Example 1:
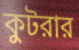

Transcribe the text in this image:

কুটরার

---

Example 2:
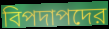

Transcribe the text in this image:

বিপদাপদের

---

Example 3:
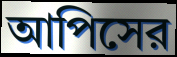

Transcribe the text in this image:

আপিসের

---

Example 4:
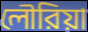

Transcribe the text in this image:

লৌরিয়া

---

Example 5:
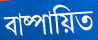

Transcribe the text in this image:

বাষ্পায়িত